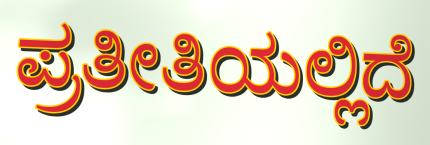
ಪ್ರತೀತಿಯಲ್ಲಿದೆ